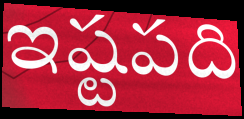
ఇష్టపది